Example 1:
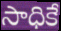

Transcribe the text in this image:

సాధికే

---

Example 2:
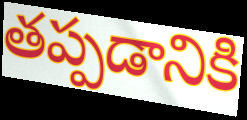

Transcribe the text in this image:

తప్పడానికి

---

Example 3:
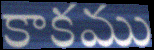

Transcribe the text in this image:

కాకము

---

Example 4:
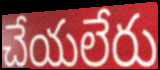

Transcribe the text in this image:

చేయలేరు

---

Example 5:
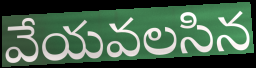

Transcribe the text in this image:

వేయవలసిన